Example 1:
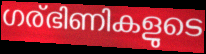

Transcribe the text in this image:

ഗര്ഭിണികളുടെ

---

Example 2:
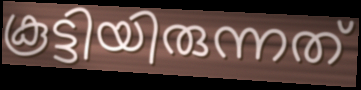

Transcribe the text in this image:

കൂട്ടിയിരുന്നത്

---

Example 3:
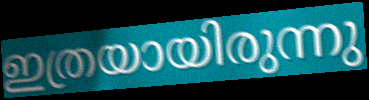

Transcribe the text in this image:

ഇത്രയായിരുന്നു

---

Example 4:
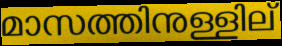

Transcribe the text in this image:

മാസത്തിനുള്ളില്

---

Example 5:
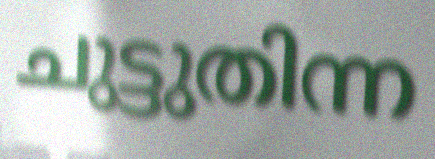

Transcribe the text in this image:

ചുട്ടുതിന്ന